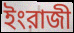
ইংরাজী